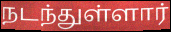
நடந்துள்ளார்